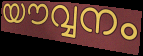
യൗവ്വനം